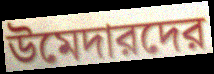
উমেদারদের